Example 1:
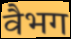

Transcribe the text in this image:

वैभग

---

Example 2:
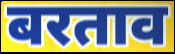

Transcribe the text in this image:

बरताव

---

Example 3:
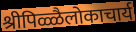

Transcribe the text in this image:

श्रीपिळ्ळैलोकाचार्य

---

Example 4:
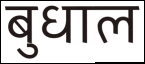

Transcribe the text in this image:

बुधाल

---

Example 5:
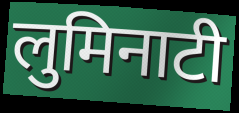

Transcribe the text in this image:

लुमिनाटी